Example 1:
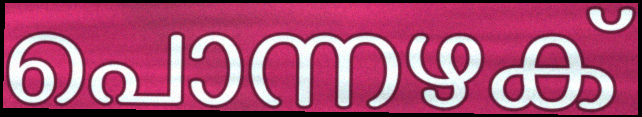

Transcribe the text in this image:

പൊന്നഴക്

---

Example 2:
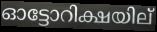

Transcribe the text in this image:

ഓട്ടോറിക്ഷയില്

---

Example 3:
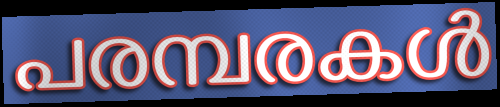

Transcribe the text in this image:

പരമ്പരകൾ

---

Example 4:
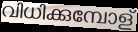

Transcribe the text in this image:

വിധിക്കുമ്പോള്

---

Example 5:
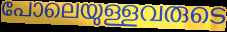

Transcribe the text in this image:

പോലെയുള്ളവരുടെ